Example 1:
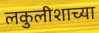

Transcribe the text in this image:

लकुलीशाच्या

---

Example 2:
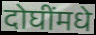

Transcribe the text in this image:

दोघींमधे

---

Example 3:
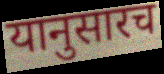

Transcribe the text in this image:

यानुसारच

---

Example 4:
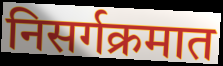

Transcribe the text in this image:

निसर्गक्रमात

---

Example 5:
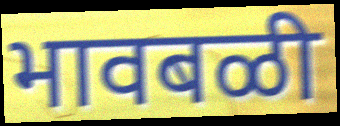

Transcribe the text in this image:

भावबळी